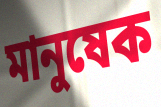
মানুষেক